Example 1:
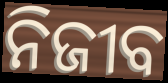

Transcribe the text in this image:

ନିଜୀବ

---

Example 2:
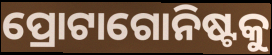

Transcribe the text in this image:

ପ୍ରୋଟାଗୋନିଷ୍ଟକୁ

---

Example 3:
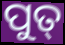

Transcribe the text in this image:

ପୁତ୍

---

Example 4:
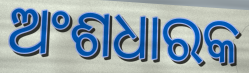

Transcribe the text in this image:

ଅଂଶଧାରକ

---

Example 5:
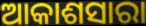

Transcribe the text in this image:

ଆକାଶସାରା